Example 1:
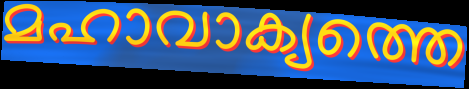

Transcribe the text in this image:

മഹാവാക്യത്തെ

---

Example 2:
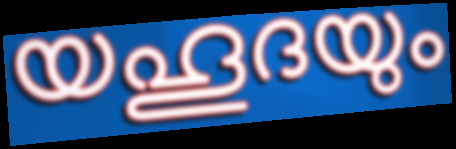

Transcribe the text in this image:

യഹൂദയും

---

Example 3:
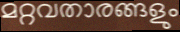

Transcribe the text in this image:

മറ്റവതാരങ്ങളും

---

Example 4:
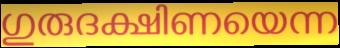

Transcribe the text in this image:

ഗുരുദക്ഷിണയെന്ന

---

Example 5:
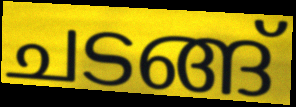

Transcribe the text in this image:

ചടങ്ങ്